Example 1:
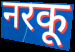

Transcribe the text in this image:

नरकू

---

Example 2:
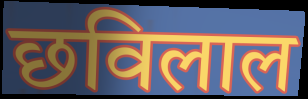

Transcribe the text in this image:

छविलाल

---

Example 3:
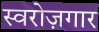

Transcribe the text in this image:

स्वरोज़गार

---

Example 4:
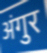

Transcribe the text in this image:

अंगुर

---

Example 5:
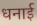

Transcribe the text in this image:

धनाई